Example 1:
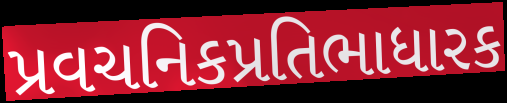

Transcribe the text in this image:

પ્રવચનિકપ્રતિભાધારક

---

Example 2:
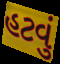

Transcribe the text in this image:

હટવું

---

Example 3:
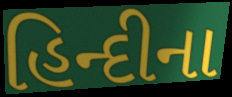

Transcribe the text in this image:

હિન્દીના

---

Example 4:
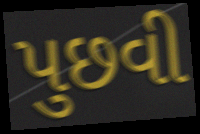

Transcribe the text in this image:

પુછવી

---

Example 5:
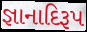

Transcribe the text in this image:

જ્ઞાનાદિરૂપ